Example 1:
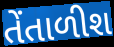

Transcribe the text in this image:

તેંતાળીશ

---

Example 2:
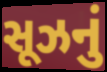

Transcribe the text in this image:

સૂઝનું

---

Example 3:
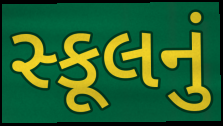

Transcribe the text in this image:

સ્કૂલનું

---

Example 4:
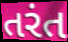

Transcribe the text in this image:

તરંત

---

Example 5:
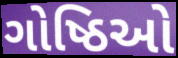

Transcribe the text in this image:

ગોષ્ઠિઓ